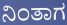
ನಿಂತಾಗ